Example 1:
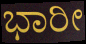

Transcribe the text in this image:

ಭಾರೀ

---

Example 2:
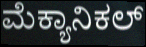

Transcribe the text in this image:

ಮೆಕ್ಯಾನಿಕಲ್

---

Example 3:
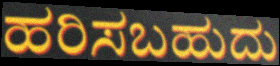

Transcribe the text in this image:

ಹರಿಸಬಹುದು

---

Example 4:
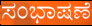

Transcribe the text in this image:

ಸಂಭಾಷಣೆ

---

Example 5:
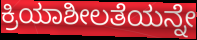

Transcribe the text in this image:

ಕ್ರಿಯಾಶೀಲತೆಯನ್ನೇ